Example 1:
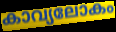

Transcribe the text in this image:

കാവ്യലോകം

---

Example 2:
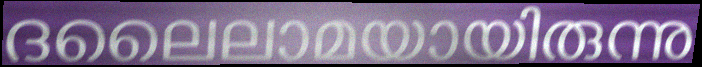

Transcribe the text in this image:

ദലൈലാമയായിരുന്നു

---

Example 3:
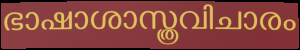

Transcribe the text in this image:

ഭാഷാശാസ്ത്രവിചാരം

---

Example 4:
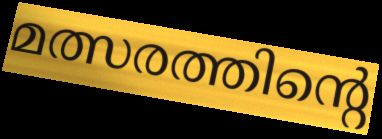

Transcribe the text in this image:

മത്സരത്തിന്റെ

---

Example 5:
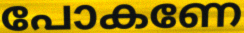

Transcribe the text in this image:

പോകണേ